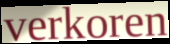
verkoren